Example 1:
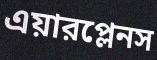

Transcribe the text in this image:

এয়ারপ্লেনস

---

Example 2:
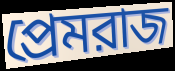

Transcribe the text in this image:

প্রেমরাজ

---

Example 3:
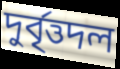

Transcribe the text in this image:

দুর্বৃত্তদল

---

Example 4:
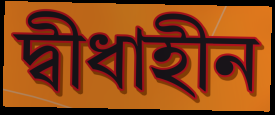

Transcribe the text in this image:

দ্বীধাহীন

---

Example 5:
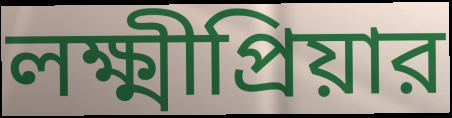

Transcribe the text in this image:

লক্ষ্মীপ্রিয়ার